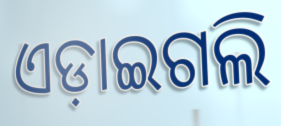
ଏଡ଼ାଇଗଲି